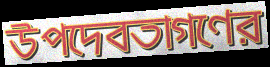
উপদেবতাগণের